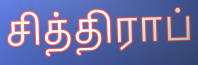
சித்திராப்